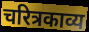
चरित्रकाव्य